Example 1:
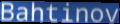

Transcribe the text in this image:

Bahtinov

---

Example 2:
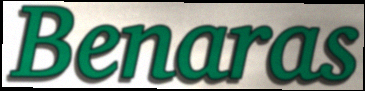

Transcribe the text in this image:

Benaras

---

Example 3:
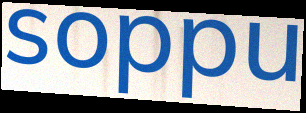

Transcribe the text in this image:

soppu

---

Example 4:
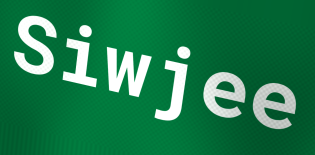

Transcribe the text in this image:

Siwjee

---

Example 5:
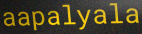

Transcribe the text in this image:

aapalyala